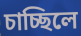
চাচ্ছিলে